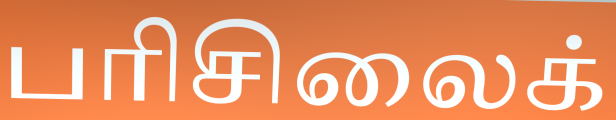
பரிசிலைக்